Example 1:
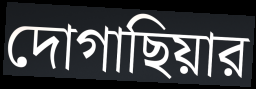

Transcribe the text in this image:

দোগাছিয়ার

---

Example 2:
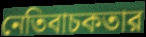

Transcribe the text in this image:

নেতিবাচকতার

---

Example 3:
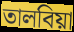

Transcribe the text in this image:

তালবিয়া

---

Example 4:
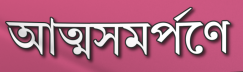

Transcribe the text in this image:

আত্মসমর্পণে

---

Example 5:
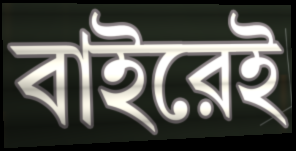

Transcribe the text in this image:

বাইরেই